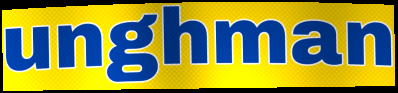
unghman